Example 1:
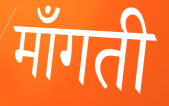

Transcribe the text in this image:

माँगती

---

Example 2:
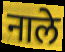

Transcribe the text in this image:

नाले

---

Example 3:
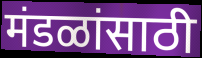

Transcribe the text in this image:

मंडळांसाठी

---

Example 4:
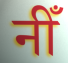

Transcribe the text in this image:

नीँ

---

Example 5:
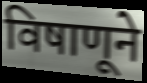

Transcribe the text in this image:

विषाणूने